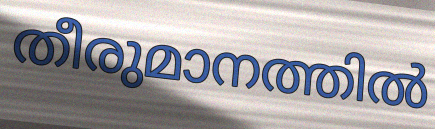
തീരുമാനത്തിൽ